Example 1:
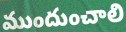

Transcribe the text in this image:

ముందుంచాలి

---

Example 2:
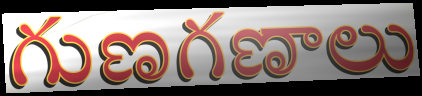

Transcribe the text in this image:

గుణగణాలు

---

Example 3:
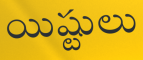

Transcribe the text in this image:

యిష్టులు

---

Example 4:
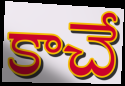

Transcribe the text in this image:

కాచే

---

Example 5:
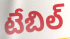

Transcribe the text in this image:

టేబిల్